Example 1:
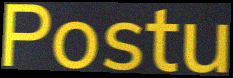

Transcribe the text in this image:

Postu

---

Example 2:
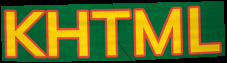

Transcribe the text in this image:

KHTML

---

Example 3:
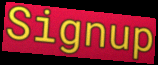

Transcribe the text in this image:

Signup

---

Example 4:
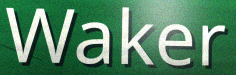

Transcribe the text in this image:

Waker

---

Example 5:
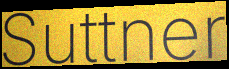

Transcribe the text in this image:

Suttner